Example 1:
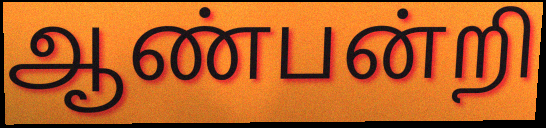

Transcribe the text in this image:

ஆண்பன்றி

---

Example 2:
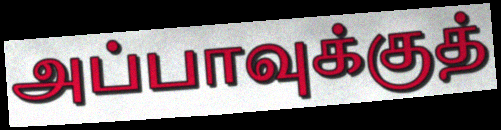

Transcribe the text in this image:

அப்பாவுக்குத்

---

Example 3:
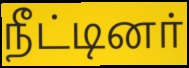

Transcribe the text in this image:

நீட்டினர்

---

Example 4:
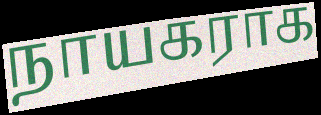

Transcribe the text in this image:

நாயகராக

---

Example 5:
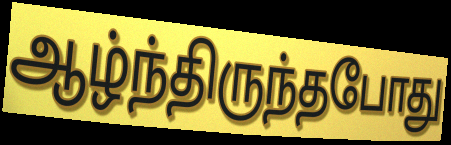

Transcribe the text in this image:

ஆழ்ந்திருந்தபோது